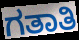
ಗತಾತಿ